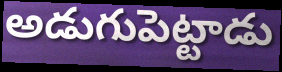
అడుగుపెట్టాడు